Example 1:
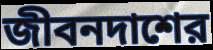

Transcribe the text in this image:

জীবনদাশের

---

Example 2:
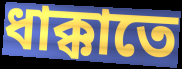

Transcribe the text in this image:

ধাক্কাতে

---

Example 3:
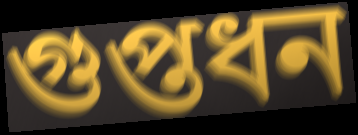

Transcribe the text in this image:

গুপ্তধন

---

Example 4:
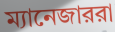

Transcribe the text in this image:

ম্যানেজাররা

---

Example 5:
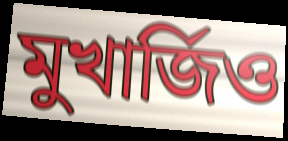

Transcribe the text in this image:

মুখার্জিও